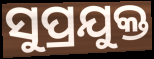
ସୁପ୍ରଯୁକ୍ତ